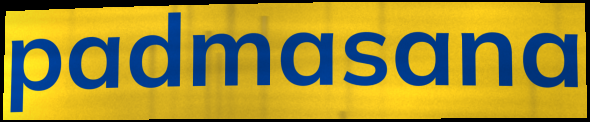
padmasana